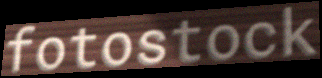
fotostock